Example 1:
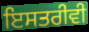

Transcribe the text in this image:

ਇਸਤਰੀਵੀ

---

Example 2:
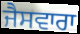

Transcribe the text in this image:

ਜੈਸਵਾਰਾ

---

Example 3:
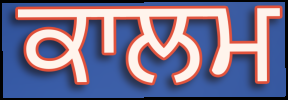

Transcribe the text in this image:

ਕਾਲਮ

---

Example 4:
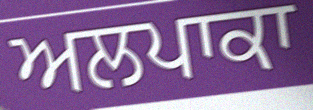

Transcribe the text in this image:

ਅਲਪਾਕਾ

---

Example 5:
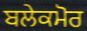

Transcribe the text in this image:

ਬਲੇਕਮੋਰ